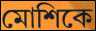
মোশিকে